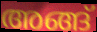
അങ്ങ്